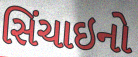
સિંચાઇનો